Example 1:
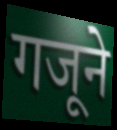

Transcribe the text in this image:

गजूने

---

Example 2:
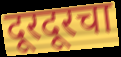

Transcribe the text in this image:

दूरदूरचा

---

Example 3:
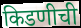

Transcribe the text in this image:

किडणीची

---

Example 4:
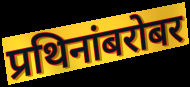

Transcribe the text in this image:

प्रथिनांबरोबर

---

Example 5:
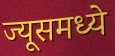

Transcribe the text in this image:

ज्यूसमध्ये